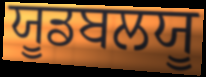
ਯੂਡਬਲਯੂ